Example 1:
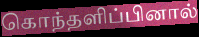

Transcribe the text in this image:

கொந்தளிப்பினால்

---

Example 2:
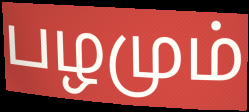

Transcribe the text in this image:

பழமும்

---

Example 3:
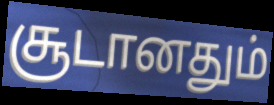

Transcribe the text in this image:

சூடானதும்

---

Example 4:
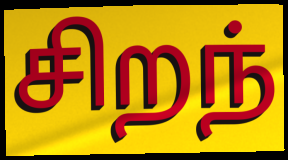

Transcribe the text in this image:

சிறந்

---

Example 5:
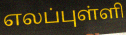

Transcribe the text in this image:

எலப்புள்ளி